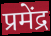
प्रमेंद्र